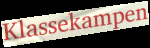
Klassekampen